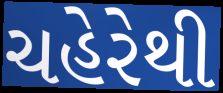
ચહેરેથી